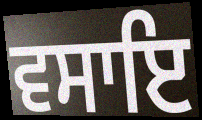
ਵਸਾਇ